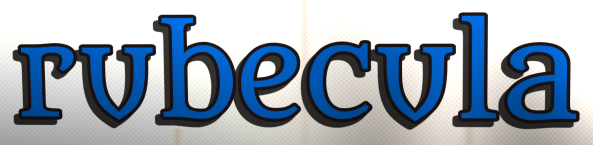
rubecula